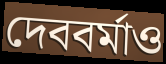
দেববর্মাও